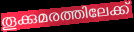
തൂക്കുമരത്തിലേക്ക്